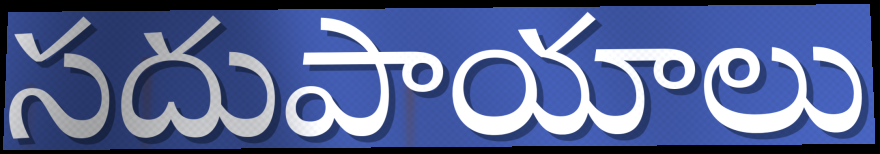
సదుపాయాలు